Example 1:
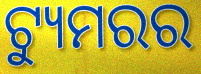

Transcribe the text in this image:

ଟ୍ୟୁମରର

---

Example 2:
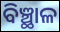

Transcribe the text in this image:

ବିଞ୍ଛାଳ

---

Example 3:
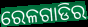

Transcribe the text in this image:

ରେଳଗାଡିର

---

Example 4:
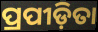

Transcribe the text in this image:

ପ୍ରପୀଡ଼ିତା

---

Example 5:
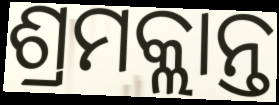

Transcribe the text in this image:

ଶ୍ରମକ୍ଲାନ୍ତ